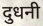
दुधनी